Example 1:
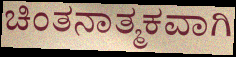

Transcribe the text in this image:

ಚಿಂತನಾತ್ಮಕವಾಗಿ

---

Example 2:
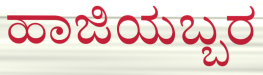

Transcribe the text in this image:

ಹಾಜಿಯಬ್ಬರ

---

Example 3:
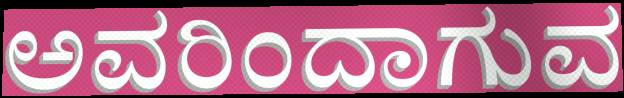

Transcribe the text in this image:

ಅವರಿಂದಾಗುವ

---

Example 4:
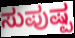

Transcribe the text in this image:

ಸುಪುಷ್ಪ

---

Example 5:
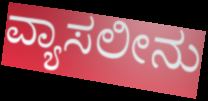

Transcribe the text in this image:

ವ್ಯಾಸಲೀನು